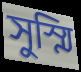
সুস্মি